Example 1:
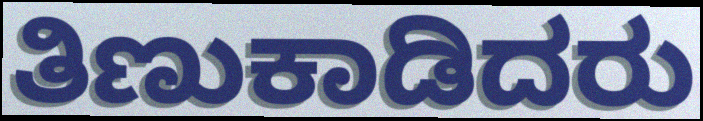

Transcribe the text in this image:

ತಿಣುಕಾಡಿದರು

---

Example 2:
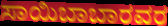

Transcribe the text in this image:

ಸಾಯಿಬಾಬಾರವರ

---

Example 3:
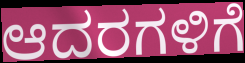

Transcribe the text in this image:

ಆದರಗಳಿಗೆ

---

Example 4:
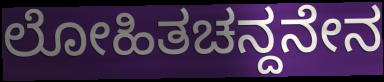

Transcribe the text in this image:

ಲೋಹಿತಚನ್ದನೇನ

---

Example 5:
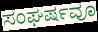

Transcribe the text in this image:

ಸಂಘರ್ಷವೂ